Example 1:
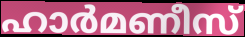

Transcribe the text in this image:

ഹാർമണീസ്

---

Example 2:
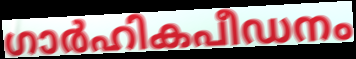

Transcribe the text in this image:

ഗാർഹികപീഡനം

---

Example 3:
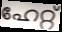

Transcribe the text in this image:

ഹേറ്റ്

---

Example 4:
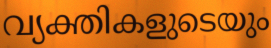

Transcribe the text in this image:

വ്യക്തികളുടെയും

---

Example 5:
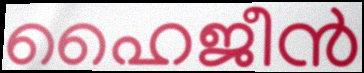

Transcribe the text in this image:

ഹൈജീൻ